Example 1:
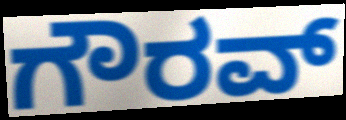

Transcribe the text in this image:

ಗೌರವ್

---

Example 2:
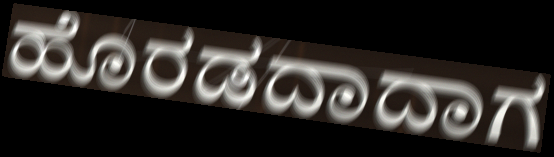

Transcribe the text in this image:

ಹೊರಡದಾದಾಗ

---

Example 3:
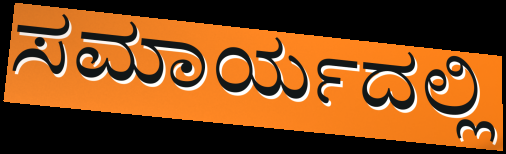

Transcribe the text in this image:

ಸಮಾರ್ಯದಲ್ಲಿ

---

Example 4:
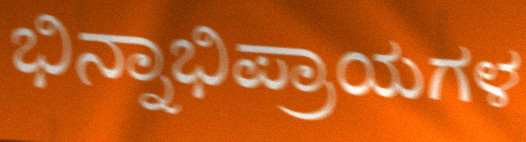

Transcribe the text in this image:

ಭಿನ್ನಾಭಿಪ್ರಾಯಗಳ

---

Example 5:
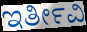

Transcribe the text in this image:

ಇರ್ತೀವಿ